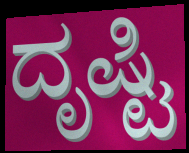
ದೃಷ್ಟಿ